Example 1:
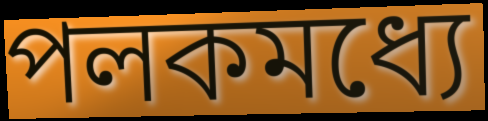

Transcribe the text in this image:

পলকমধ্যে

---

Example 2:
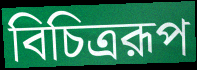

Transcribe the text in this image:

বিচিত্ররূপ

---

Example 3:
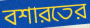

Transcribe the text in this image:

বশারতের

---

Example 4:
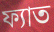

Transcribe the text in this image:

ফ্যাত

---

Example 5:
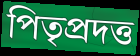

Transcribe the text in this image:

পিতৃপ্রদত্ত